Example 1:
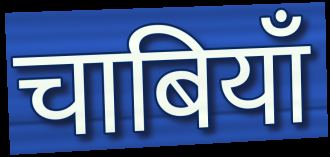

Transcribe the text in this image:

चाबियाँ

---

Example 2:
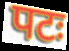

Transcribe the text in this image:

पटः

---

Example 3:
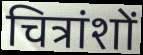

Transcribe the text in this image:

चित्रांशों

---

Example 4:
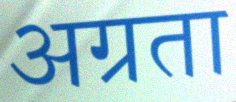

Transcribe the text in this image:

अग्रता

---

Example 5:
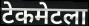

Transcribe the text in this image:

टेकमेटला